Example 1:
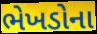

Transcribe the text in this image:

ભેખડોના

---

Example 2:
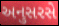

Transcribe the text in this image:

અનુસરસે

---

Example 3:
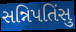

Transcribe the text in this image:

સન્નિપતિંસુ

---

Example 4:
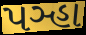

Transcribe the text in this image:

પઞ્હા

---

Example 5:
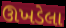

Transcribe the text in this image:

ઊખડેલા